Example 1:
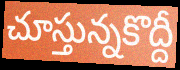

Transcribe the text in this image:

చూస్తున్నకొద్దీ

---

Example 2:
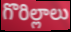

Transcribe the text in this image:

గొరిల్లాలు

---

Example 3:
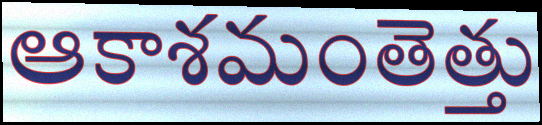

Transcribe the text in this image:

ఆకాశమంతెత్తు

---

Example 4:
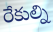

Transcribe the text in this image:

రేకుల్ని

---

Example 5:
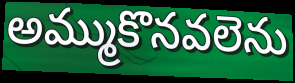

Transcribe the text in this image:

అమ్ముకొనవలెను